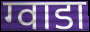
ग्वाडा